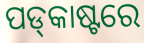
ପଡ୍‌କାଷ୍ଟରେ